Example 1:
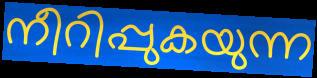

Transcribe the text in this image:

നീറിപ്പുകയുന്ന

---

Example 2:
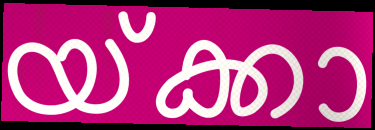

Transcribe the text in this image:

യ്‌ക്കാ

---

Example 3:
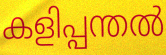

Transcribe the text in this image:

കളിപ്പന്തൽ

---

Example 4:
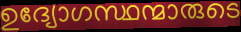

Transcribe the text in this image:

ഉദ്യോഗസ്ഥന്മാരുടെ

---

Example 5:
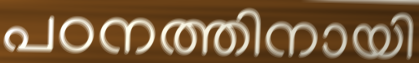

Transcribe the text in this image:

പഠനത്തിനായി